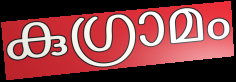
കുഗ്രാമം